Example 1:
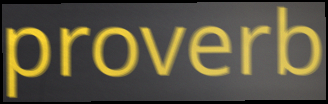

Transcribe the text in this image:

proverb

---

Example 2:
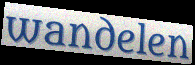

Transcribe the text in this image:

wandelen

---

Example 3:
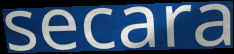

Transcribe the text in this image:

secara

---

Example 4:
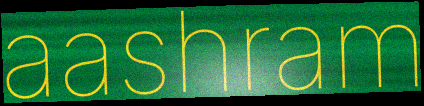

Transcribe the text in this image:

aashram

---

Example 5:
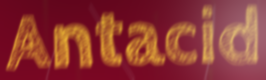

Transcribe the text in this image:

Antacid